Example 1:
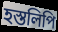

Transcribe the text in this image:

হস্তলিপি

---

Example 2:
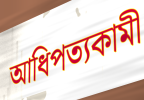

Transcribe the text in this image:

আধিপত্যকামী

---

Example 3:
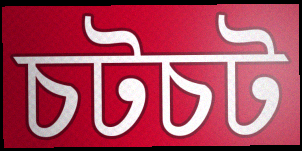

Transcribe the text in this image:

চটচট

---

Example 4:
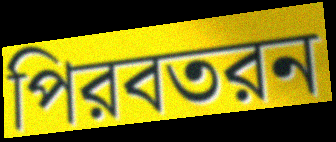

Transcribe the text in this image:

পিরবতরন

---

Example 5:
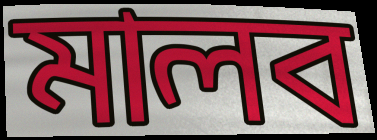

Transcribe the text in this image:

মালব